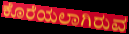
ಕೊರೆಯಲಾಗಿರುವ